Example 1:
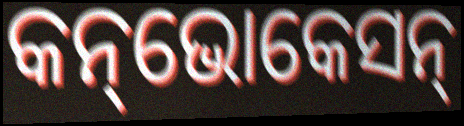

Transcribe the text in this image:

କନ୍‌ଭୋକେସନ୍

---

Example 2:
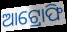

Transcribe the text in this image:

ଆଟ୍ରୋଫି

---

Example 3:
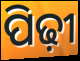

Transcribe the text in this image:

ପିଢ଼ୀ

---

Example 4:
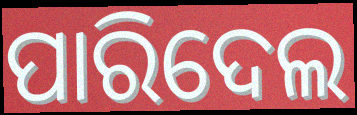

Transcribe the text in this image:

ପାରିଦେଲ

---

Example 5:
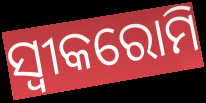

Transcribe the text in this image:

ସ୍ଵୀକରୋମି